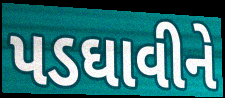
પડઘાવીને